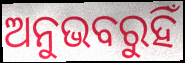
ଅନୁଭବରୁହିଁ